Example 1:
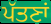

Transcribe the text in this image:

ਪੱਤਣਾਂ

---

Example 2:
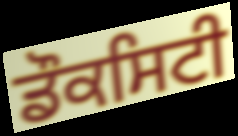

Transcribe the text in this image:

ਡੌਕਸਿਟੀ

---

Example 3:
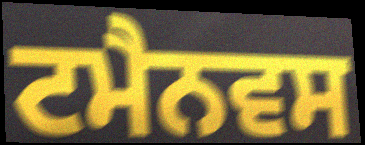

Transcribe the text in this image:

ਟਮੈਨਵਸ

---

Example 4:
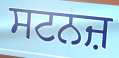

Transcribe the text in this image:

ਸਟਨਜ਼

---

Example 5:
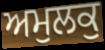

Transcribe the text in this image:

ਅਮੁਲਕੁ